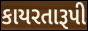
કાયરતારૂપી